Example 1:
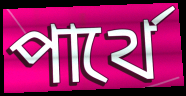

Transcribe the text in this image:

পার্থে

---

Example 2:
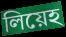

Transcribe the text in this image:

লিয়েহ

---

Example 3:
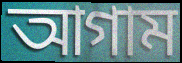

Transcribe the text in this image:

আগাম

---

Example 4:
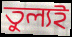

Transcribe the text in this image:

তুল্যই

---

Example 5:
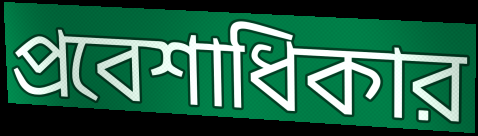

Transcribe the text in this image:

প্রবেশাধিকার